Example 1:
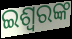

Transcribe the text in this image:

ଇଶ୍ୱରଙ୍କ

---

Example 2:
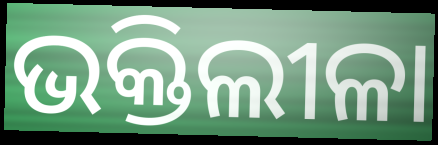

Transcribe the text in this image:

ଭକ୍ତିଲୀଳା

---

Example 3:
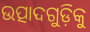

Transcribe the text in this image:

ଉତ୍ପାଦଗୁଡ଼ିକୁ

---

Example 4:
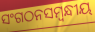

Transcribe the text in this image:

ସଂଗଠନସମ୍ବନ୍ଧୀୟ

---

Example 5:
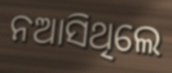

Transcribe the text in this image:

ନଆସିଥିଲେ